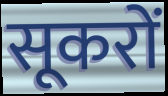
सूकरों